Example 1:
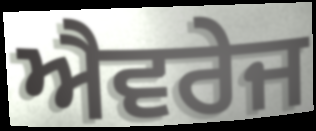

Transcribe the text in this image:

ਐਵਰੇਜ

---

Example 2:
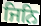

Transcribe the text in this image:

ਜਿਨਿ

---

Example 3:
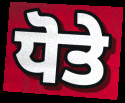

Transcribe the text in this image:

ਧੋਤੇ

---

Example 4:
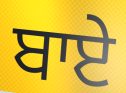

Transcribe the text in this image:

ਬਾਏ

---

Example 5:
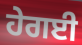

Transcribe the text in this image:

ਹੇਗਈ